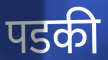
पडकी